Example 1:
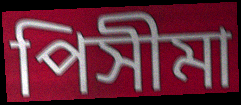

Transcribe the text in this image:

পিসীমা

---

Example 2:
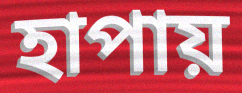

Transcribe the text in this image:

হাপায়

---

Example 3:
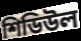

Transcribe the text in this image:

শিডিউল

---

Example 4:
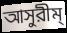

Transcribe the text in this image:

আসুরীম্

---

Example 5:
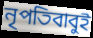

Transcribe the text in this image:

নৃপতিবাবুই